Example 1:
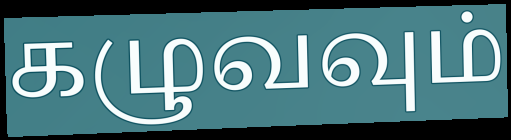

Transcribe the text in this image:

கழுவவும்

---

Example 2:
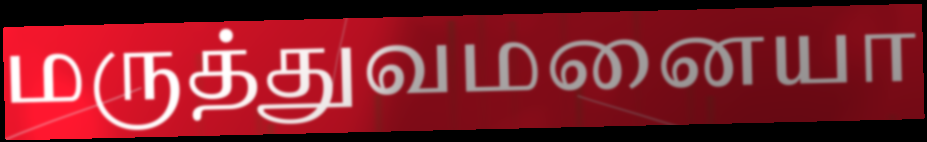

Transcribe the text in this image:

மருத்துவமனையா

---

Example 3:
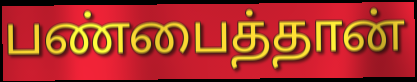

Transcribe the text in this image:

பண்பைத்தான்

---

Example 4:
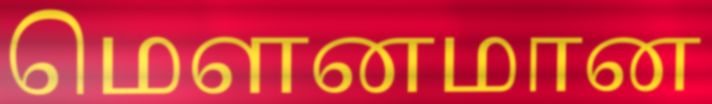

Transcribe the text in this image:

மௌனமான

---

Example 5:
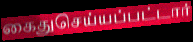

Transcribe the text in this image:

கைதுசெய்யப்பட்டார்